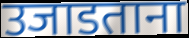
उजाडताना